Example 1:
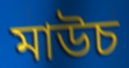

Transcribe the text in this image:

মাউচ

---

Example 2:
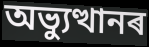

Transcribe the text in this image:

অভ্যুত্থানৰ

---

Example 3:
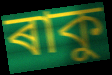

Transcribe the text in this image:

ৰাকু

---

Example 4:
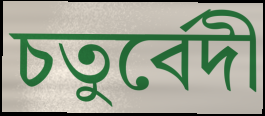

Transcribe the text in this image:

চতুৰ্বেদী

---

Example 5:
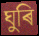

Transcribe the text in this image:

ঘুৰি